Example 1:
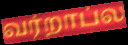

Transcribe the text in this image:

வர்றாப்ல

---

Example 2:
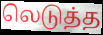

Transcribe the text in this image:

லெடுத்த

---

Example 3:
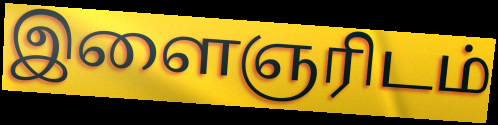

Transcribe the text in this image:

இளைஞரிடம்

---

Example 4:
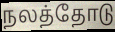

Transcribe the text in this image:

நலத்தோடு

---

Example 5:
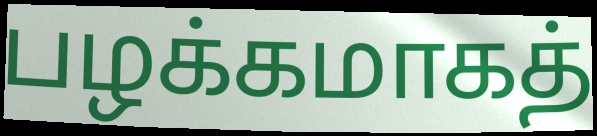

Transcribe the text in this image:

பழக்கமாகத்